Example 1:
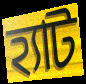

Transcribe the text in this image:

হ্যাট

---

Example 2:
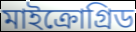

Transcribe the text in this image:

মাইক্রোগ্রিড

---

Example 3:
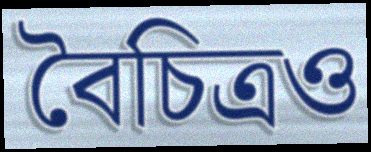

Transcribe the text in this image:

বৈচিত্রও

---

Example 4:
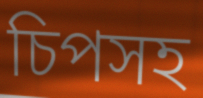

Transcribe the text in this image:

চিপসহ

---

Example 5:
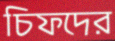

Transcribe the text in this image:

চিফদের